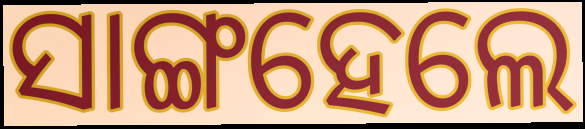
ସାଙ୍ଗହେଲେ